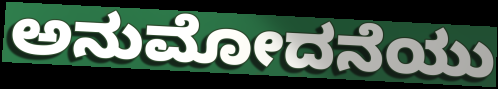
ಅನುಮೋದನೆಯು